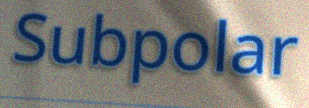
Subpolar